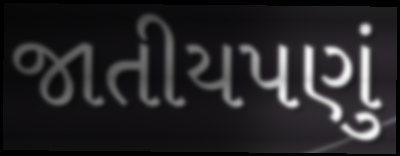
જાતીયપણું